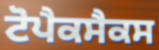
ਟੋਪੈਕਸੈਕਸ